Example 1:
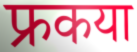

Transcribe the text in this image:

फ्रकया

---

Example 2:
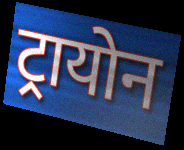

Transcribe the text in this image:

ट्रायोन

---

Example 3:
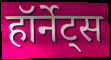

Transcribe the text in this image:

हॉर्नेट्स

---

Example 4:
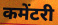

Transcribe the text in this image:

कमेंटरी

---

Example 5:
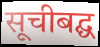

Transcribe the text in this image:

सूचीबद्घ